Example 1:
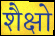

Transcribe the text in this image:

शैक्षो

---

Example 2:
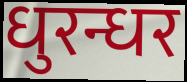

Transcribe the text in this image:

धुरन्धर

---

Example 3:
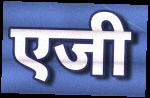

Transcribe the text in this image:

एजी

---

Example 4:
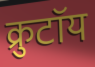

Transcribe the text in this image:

क्रुटॉय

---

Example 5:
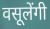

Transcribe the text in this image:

वसूलेंगी